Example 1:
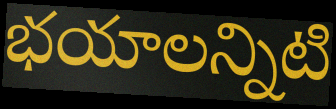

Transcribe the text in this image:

భయాలన్నిటి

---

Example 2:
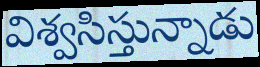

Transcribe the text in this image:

విశ్వసిస్తున్నాడు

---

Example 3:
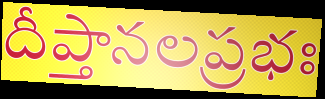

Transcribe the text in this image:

దీప్తానలప్రభః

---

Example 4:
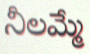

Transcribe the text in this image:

నీలమ్మే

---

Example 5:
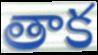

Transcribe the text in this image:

తాక